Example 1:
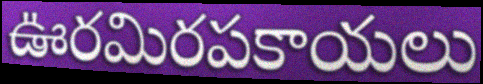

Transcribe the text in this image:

ఊరమిరపకాయలు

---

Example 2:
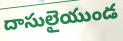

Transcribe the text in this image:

దాసులైయుండ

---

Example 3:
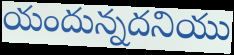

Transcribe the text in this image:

యందున్నదనియు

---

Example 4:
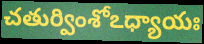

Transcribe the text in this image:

చతుర్వింశోఽధ్యాయః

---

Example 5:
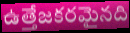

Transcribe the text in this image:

ఉత్తేజకరమైనది